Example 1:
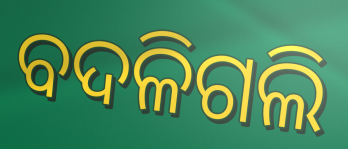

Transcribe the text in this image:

ବଦଳିଗଲି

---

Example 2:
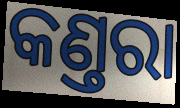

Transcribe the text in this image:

କଣ୍ତରା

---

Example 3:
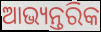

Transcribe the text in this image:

ଆଭ୍ୟନ୍ତରିକ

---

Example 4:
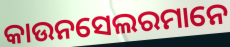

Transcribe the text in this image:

କାଉନସେଲରମାନେ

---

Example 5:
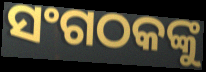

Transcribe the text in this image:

ସଂଗଠକଙ୍କୁ